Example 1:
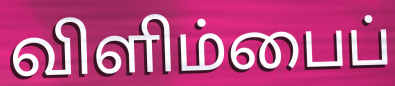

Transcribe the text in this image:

விளிம்பைப்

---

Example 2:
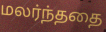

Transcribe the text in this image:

மலர்ந்ததை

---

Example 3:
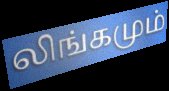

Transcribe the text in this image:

லிங்கமும்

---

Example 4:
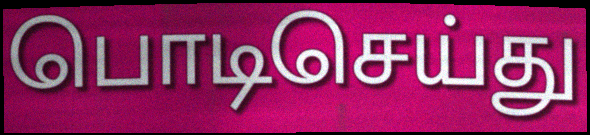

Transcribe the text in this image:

பொடிசெய்து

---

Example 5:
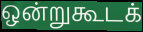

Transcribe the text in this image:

ஒன்றுகூடக்